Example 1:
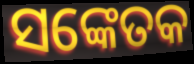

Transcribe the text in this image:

ସଙ୍କେତକ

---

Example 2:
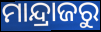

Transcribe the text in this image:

ମାନ୍ଦ୍ରାଜରୁ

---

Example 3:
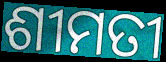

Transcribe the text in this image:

ଶୀମତୀ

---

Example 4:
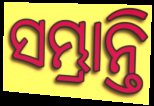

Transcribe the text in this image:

ସମ୍ଭ୍ରାନ୍ତି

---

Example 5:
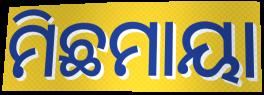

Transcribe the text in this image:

ମିଛମାୟା